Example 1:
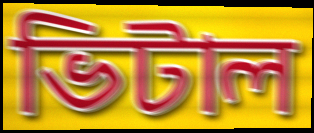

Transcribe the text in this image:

ভিটাল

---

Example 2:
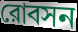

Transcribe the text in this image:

রোবসন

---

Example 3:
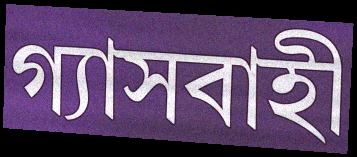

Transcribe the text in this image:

গ্যাসবাহী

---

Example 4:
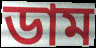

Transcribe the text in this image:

ডাম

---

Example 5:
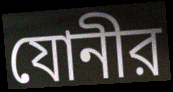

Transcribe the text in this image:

যোনীর